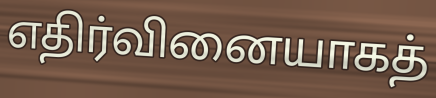
எதிர்வினையாகத்